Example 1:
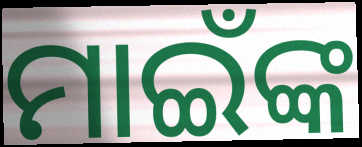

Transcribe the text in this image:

ମାଇଁଙ୍କ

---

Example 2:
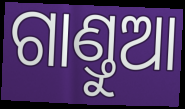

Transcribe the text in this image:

ଗାଣ୍ତୁଆ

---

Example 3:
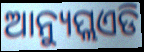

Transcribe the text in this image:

ଆନ୍ୟୁପ୍ଲଏଡି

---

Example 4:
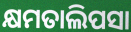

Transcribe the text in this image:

କ୍ଷମତାଲିପସା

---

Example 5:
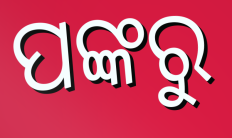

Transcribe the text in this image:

ପଙ୍କରୁ